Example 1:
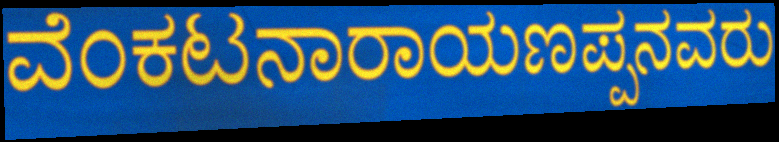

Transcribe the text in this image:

ವೆಂಕಟನಾರಾಯಣಪ್ಪನವರು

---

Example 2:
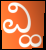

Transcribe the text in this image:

ವ್ಹಿ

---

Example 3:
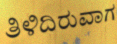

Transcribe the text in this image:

ತಿಳಿದಿರುವಾಗ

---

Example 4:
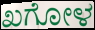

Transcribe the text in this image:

ಖಗೋಳ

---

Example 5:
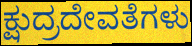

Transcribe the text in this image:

ಕ್ಷುದ್ರದೇವತೆಗಳು